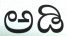
ಅಡಿ